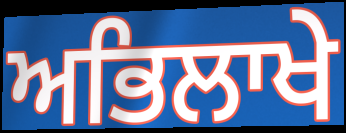
ਅਭਿਲਾਖੇ